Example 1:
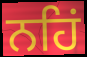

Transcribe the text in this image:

ਨਹਿਂ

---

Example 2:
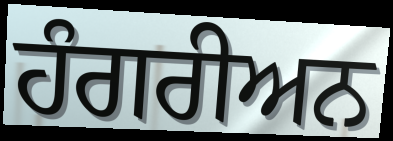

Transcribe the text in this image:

ਹੰਗਰੀਅਨ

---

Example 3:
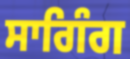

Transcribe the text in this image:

ਸਾਗਿੰਗ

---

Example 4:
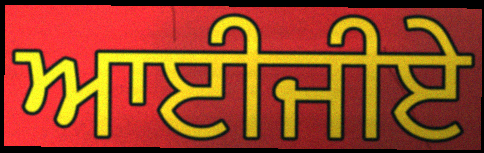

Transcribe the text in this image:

ਆਈਜੀਏ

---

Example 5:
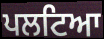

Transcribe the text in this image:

ਪਲਟਿਆ